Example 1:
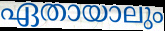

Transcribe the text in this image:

ഏതായാലും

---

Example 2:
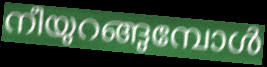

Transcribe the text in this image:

നീയുറങ്ങുമ്പോൾ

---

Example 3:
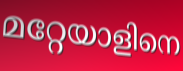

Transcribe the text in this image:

മറ്റേയാളിനെ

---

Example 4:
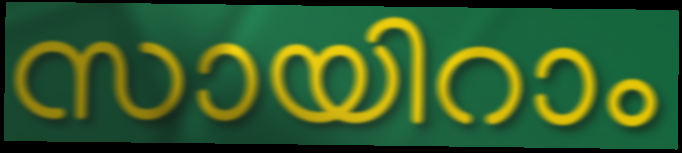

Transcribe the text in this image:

സായിറാം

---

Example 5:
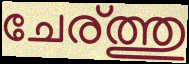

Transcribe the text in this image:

ചേര്ത്തു